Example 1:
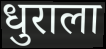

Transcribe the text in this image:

धुराला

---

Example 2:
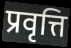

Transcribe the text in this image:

प्रवृत्ति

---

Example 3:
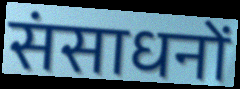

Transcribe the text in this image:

संसाधनों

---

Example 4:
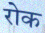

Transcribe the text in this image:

रोक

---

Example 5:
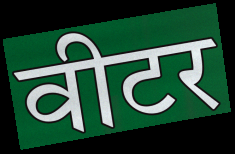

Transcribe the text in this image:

वीटर